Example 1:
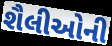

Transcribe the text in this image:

શૈલીઓની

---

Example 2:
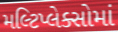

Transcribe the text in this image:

મલ્ટિપ્લેક્સોમાં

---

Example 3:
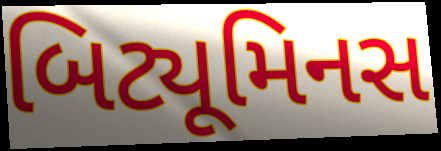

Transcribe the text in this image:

બિટ્યૂમિનસ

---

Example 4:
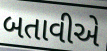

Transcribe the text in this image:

બતાવીએ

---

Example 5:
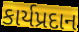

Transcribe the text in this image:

કાર્યપ્રદાન